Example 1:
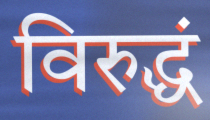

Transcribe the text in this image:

विरुद्धं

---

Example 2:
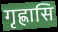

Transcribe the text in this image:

गृह्णासि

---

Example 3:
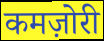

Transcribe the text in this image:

कमज़ोरी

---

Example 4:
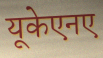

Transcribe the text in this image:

यूकेएनए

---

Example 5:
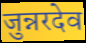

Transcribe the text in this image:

जुन्नरदेव